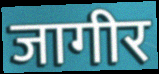
जागीर